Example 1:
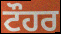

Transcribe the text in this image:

ਟੌਹਰ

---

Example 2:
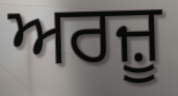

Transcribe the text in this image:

ਅਰਜ਼ੂ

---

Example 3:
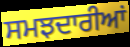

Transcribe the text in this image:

ਸਮਝਦਾਰੀਆਂ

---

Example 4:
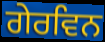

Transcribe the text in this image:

ਗੇਰਵਿਨ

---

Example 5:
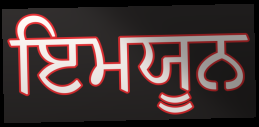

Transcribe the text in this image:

ਇਮਯੂਨ